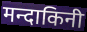
मन्दाकिनी